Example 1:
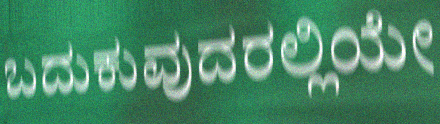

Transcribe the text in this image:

ಬದುಕುವುದರಲ್ಲಿಯೇ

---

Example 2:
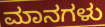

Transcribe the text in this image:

ಮಾನಗಳು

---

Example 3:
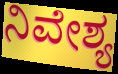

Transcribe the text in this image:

ನಿವೇಶ್ಯ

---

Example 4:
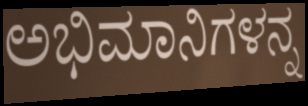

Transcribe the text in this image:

ಅಭಿಮಾನಿಗಳನ್ನ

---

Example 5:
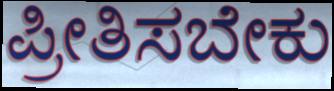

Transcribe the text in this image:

ಪ್ರೀತಿಸಬೇಕು